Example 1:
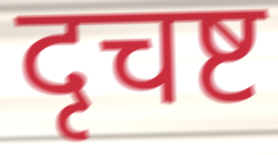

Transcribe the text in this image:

दृचष्ट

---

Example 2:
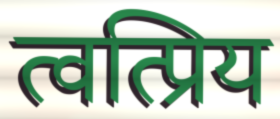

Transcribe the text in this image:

त्वत्प्रिय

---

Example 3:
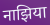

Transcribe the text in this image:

नाझिया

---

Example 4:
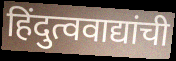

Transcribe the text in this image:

हिंदुत्ववाद्यांची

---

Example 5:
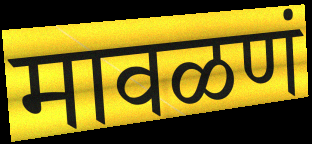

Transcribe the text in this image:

मावळणं